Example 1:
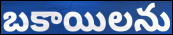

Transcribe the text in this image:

బకాయిలను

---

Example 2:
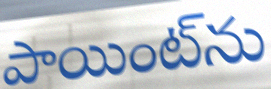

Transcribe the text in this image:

పాయింట్‌ను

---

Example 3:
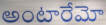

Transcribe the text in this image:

అంటారేమో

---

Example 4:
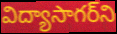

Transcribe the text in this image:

విద్యాసాగర్‌ని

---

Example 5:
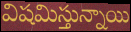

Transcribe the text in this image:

విషమిస్తున్నాయి